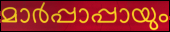
മാർപ്പാപ്പായും